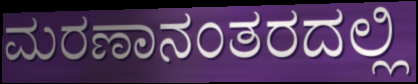
ಮರಣಾನಂತರದಲ್ಲಿ